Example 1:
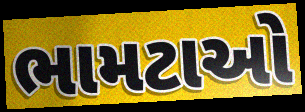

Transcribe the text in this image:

ભામટાઓ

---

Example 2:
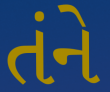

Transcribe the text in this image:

તંને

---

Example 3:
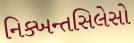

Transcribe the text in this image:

નિક્ખન્તસિલેસો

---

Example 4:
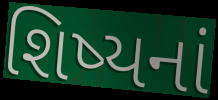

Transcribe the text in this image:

શિષ્યનાં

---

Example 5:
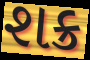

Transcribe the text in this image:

શક્ર